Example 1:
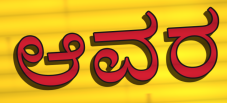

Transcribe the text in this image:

ಆವರ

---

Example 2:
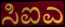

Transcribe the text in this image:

ಸಿಐಎ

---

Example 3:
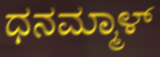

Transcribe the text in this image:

ಧನಮ್ಮಾಳ್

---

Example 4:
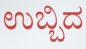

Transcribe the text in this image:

ಉಬ್ಬಿದ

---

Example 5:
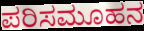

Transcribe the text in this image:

ಪರಿಸಮೂಹನ